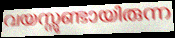
വയസ്സുണ്ടായിരുന്ന